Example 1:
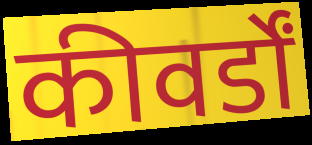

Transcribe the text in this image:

कीवर्डों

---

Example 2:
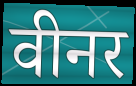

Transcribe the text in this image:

वीनर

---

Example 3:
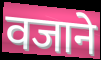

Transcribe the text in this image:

वजाने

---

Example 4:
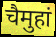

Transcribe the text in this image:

चैमुहां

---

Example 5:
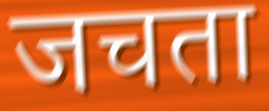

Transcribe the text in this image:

जचता